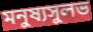
মনুষ্যসুলভ